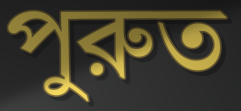
পুরুত